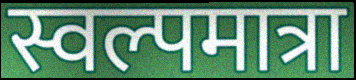
स्वल्पमात्रा